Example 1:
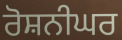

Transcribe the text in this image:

ਰੋਸ਼ਨੀਘਰ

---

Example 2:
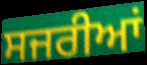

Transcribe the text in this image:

ਸਜਰੀਆਂ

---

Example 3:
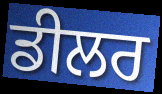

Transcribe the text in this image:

ਡੀਲਰ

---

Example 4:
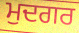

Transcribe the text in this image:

ਮੁਦਗਰ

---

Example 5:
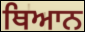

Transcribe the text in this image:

ਥਿਆਨ